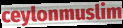
ceylonmuslim